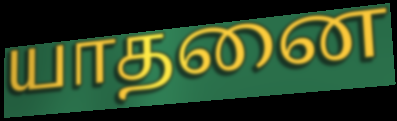
யாதனை